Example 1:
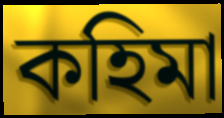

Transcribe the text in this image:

কহিমা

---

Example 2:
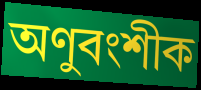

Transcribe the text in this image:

অণুবংশীক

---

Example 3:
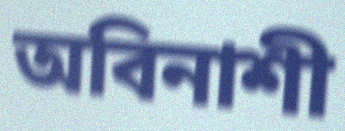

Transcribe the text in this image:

অবিনাশী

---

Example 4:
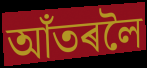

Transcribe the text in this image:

আঁতৰলৈ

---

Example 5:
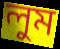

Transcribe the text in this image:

লুম